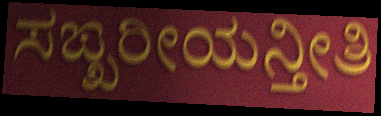
ಸಙ್ಖರೀಯನ್ತೀತಿ